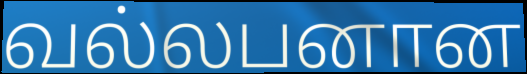
வல்லபனான